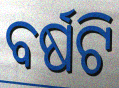
ବର୍ଷଟି